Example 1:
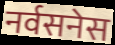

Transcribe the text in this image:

नर्वसनेस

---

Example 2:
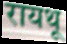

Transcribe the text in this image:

रायथू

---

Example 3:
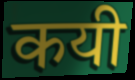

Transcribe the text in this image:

कयी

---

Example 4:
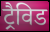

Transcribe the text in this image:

ट्रैविड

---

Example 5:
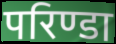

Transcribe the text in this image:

परिण्डा